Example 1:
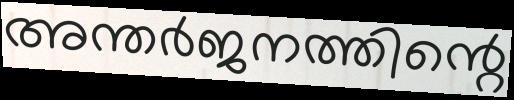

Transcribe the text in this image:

അന്തർജനത്തിന്റെ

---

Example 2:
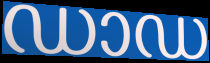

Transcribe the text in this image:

ഡാഡ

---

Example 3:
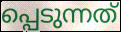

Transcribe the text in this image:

പ്പെടുന്നത്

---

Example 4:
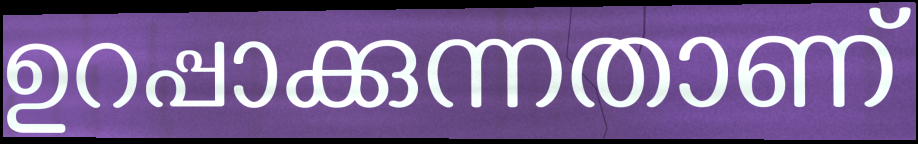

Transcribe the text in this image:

ഉറപ്പാക്കുന്നതാണ്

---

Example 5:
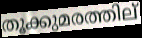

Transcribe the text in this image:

തൂക്കുമരത്തില്